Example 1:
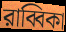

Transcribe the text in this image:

রাব্বিকা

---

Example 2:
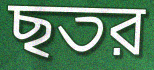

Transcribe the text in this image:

ছতর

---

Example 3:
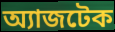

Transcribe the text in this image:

অ্যাজটেক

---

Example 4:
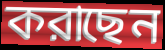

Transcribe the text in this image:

করাছেন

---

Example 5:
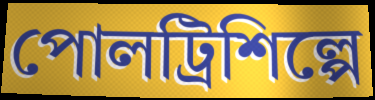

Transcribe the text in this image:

পোলট্রিশিল্পে